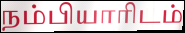
நம்பியாரிடம்